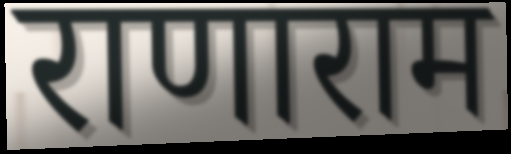
राणाराम